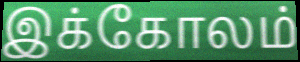
இக்கோலம்